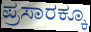
ಪ್ರಸಾರಕ್ಕೂ